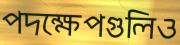
পদক্ষেপগুলিও